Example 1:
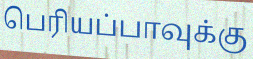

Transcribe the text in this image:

பெரியப்பாவுக்கு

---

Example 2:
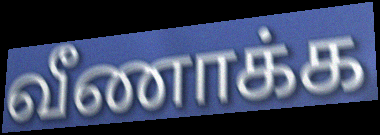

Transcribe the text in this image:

வீணாக்க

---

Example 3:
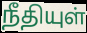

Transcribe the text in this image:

நீதியுள்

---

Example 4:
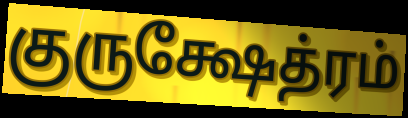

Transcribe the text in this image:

குருக்ஷேத்ரம்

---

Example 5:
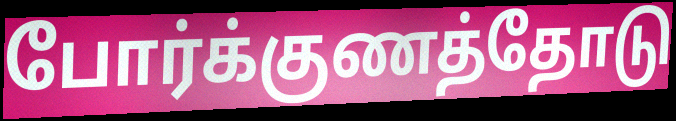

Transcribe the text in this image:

போர்க்குணத்தோடு